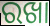
ରଖା